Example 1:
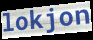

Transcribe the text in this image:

lokjon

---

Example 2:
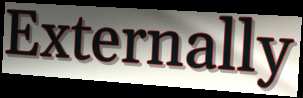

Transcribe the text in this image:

Externally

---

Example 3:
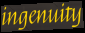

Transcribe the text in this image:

ingenuity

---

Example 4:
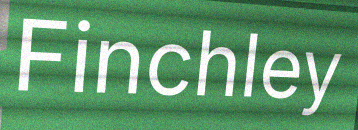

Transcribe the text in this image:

Finchley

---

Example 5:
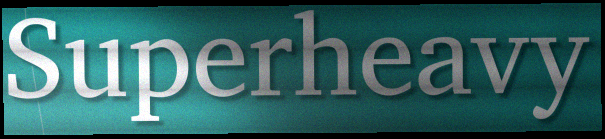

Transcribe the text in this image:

Superheavy